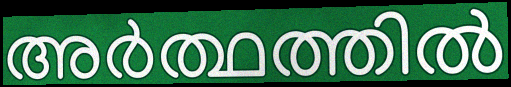
അർത്ഥത്തിൽ